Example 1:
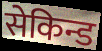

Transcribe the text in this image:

सेकिन्ड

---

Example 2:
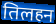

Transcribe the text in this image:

तिलहन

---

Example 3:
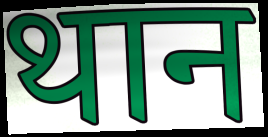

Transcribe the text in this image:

थान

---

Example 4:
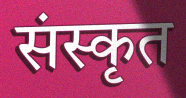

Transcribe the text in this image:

संस्‍कृत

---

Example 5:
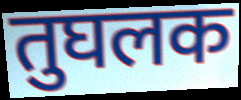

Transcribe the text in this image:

तुघलक